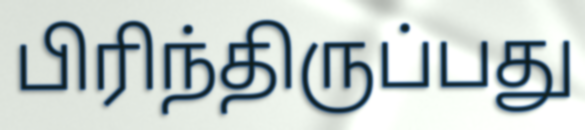
பிரிந்திருப்பது